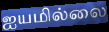
ஐயமில்லை